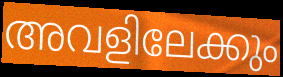
അവളിലേക്കും